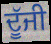
ਦੂੱਜੀ